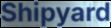
Shipyard